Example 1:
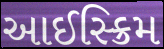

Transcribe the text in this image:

આઈસ્ક્રિમ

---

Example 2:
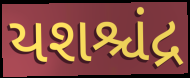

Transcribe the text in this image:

યશશ્ચંદ્ર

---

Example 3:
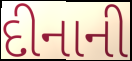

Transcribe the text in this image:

દીનાની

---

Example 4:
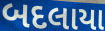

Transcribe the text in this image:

બદલાયા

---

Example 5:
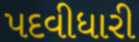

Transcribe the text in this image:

પદવીધારી